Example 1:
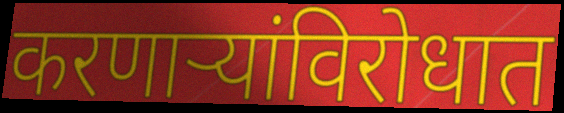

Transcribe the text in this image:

करणाऱ्यांविरोधात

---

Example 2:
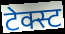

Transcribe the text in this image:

टेक्स्ट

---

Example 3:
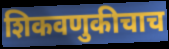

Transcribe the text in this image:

शिकवणुकीचाच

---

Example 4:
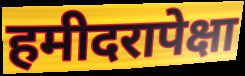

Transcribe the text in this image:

हमीदरापेक्षा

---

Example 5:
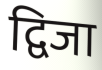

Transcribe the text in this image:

द्विजा